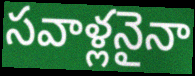
సవాళ్లనైనా